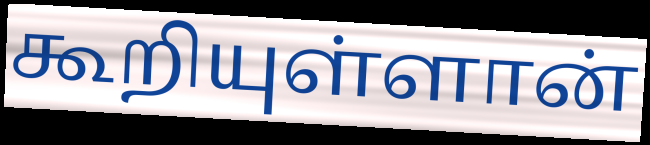
கூறியுள்ளான்